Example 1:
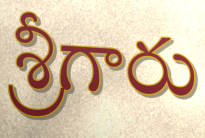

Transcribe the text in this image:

శ్రీగారు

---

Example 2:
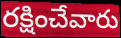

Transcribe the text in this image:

రక్షించేవారు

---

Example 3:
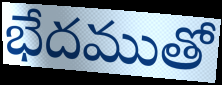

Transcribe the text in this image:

భేదముతో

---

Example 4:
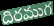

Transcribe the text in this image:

దిరముగ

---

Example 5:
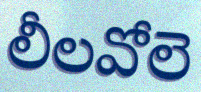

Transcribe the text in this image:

లీలవోలె